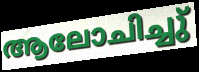
ആലോചിച്ചു്